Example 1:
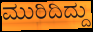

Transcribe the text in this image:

ಮುರಿದಿದ್ದು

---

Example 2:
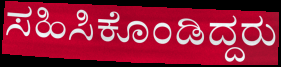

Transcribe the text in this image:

ಸಹಿಸಿಕೊಂಡಿದ್ದರು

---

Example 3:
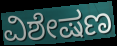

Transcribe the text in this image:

ವಿಶೇಷಣ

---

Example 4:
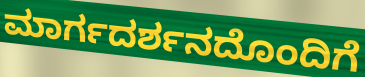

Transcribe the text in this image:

ಮಾರ್ಗದರ್ಶನದೊಂದಿಗೆ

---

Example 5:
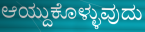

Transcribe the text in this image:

ಆಯ್ದುಕೊಳ್ಳುವುದು